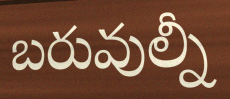
బరువుల్నీ